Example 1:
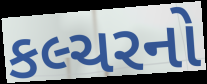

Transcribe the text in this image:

કલ્ચરનો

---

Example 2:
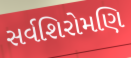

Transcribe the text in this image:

સર્વશિરોમણિ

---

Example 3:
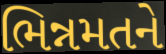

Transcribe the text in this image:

ભિન્નમતને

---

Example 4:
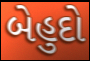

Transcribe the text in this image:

બેહુદો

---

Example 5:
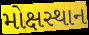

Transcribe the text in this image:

મોક્ષસ્થાન